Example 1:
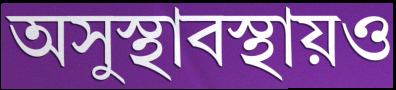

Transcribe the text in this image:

অসুস্থাবস্থায়ও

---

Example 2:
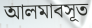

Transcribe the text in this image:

আলমাবসূত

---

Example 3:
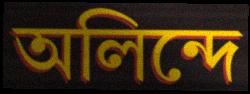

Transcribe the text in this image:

অলিন্দে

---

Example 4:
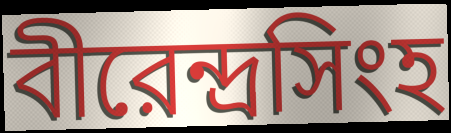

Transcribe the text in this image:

বীরেন্দ্রসিংহ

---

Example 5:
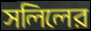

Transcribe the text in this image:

সলিলের